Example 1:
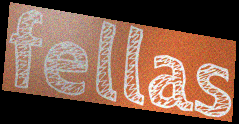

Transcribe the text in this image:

fellas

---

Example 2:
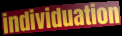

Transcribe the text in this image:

individuation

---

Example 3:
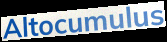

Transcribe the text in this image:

Altocumulus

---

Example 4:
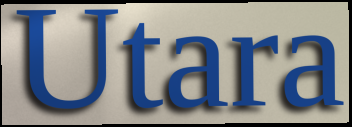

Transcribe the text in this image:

Utara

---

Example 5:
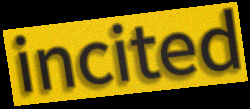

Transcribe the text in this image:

incited